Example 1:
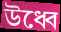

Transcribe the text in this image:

উধ্বে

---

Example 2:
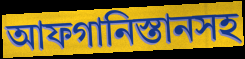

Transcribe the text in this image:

আফগানিস্তানসহ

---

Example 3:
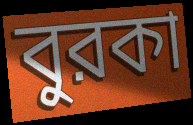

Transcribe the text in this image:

বুরকা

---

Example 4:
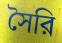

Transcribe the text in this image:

সৈরি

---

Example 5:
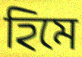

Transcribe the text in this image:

হিমে